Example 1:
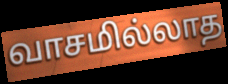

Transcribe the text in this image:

வாசமில்லாத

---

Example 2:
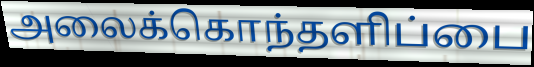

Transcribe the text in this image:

அலைக்கொந்தளிப்பை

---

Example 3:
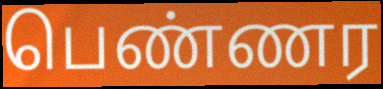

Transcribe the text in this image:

பெண்ணர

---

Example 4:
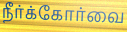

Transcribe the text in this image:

நீர்க்கோர்வை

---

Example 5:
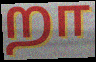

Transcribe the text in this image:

றா